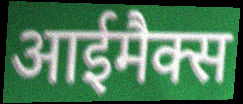
आईमैक्स